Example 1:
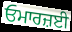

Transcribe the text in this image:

ਓਮਾਰਜ਼ਈ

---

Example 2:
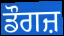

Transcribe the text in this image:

ਡੌਗਜ਼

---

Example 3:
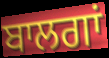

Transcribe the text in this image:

ਬਾਲਗਾਂ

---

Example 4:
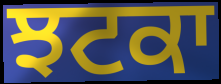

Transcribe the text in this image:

ਝਟਕਾ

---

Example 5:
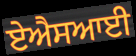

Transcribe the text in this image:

ਏਐਸਆਈ